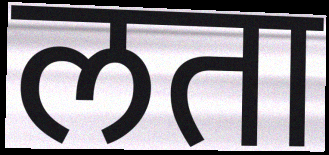
लता